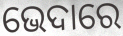
ଭେଦାରେ